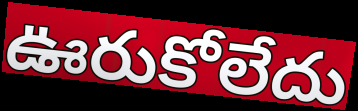
ఊరుకోలేదు